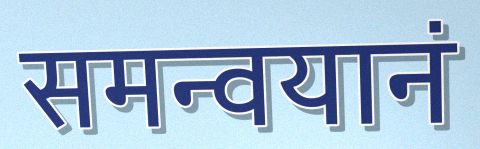
समन्वयानं